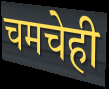
चमचेही